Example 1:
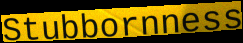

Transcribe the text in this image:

Stubbornness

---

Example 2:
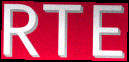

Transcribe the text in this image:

RTE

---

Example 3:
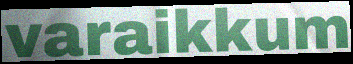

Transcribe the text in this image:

varaikkum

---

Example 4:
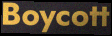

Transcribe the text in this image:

Boycott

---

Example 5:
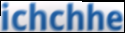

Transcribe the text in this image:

ichchhe